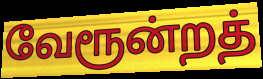
வேரூன்றத்